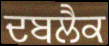
ਦਬਲੈਕ